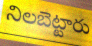
నిలబెట్టారు